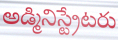
అడ్మినిస్ట్రేటరు